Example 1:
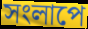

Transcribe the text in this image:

সংলাপে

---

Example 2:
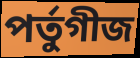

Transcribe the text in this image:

পৰ্তুগীজ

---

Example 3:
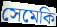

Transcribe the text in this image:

সেমেকি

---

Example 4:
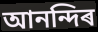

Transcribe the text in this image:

আনন্দিৰ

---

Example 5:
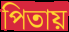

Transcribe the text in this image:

পিতায়